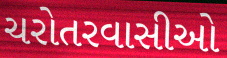
ચરોતરવાસીઓ